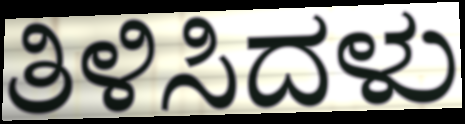
ತಿಳಿಸಿದಳು